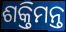
ଶକ୍ତିମନ୍ତ